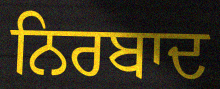
ਨਿਰਬਾਦ